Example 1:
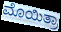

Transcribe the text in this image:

ಮೊಯಿತ್ರಾ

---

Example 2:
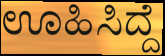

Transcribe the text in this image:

ಊಹಿಸಿದ್ದೆ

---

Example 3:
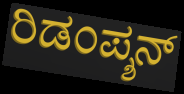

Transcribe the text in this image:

ರಿಡಂಪ್ಶನ್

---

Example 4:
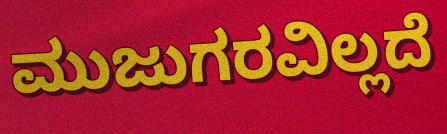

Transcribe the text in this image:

ಮುಜುಗರವಿಲ್ಲದೆ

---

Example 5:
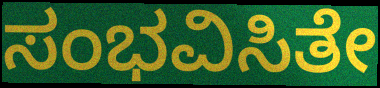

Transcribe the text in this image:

ಸಂಭವಿಸಿತೇ